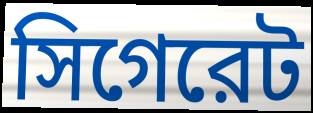
সিগেরেট